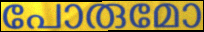
പോരുമോ